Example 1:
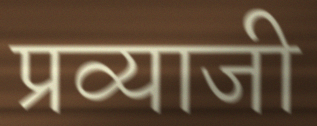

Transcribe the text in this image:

प्रव्याजी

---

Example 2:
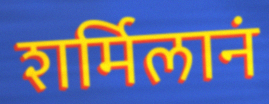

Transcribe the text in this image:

शर्मिलानं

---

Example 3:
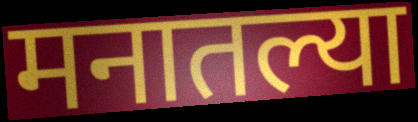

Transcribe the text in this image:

मनातल्या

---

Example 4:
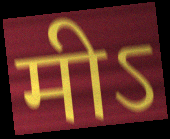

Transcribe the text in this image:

मीऽ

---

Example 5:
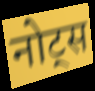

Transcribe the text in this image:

नोट्‌स